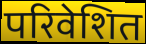
परिवेशित